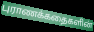
புராணக்கதைகளின்